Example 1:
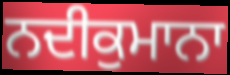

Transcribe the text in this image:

ਨਦੀਕੁਮਾਨਾ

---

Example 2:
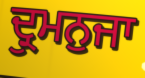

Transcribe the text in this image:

ਦ੍ਰੁਮਨੁਜਾ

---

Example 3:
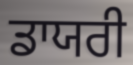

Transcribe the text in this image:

ਡਾਯਰੀ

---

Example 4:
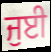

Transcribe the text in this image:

ਜੁਈ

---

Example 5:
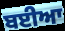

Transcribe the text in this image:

ਬਈਆ